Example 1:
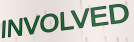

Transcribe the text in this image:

INVOLVED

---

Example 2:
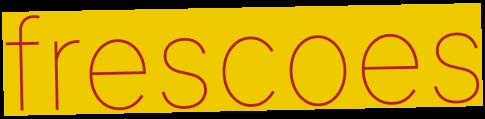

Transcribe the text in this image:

frescoes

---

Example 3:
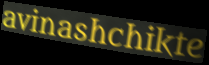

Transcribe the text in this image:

avinashchikte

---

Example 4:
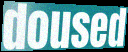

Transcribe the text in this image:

doused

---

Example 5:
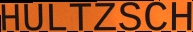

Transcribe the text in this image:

HULTZSCH